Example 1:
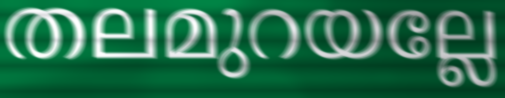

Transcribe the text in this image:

തലമുറയല്ലേ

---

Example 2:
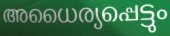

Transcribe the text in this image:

അധൈര്യപ്പെട്ടും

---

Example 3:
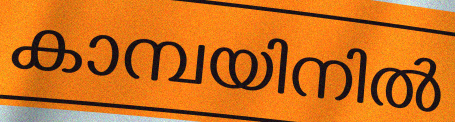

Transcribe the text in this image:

കാമ്പയിനിൽ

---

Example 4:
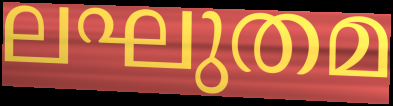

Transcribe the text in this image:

ലഘുതമ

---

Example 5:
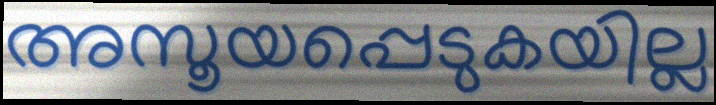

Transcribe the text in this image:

അസൂയപ്പെടുകയില്ല